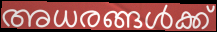
അധരങ്ങൾക്ക്